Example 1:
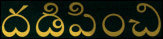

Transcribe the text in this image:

దడిపించి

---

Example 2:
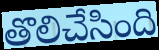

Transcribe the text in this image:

తొలిచేసింది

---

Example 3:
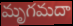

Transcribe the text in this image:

మృగమదా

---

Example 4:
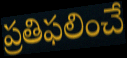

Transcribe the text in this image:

ప్రతిఫలించే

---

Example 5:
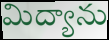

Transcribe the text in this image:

మిద్యాను